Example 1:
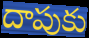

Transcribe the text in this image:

దాపుకు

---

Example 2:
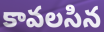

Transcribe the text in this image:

కావలసిన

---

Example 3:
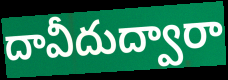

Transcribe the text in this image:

దావీదుద్వారా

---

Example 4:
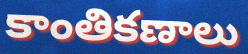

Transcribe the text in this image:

కాంతికణాలు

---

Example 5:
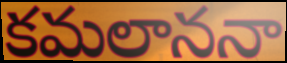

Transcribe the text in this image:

కమలాననా